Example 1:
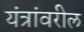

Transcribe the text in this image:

यंत्रांवरील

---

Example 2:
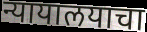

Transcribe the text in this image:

न्यायालयाचा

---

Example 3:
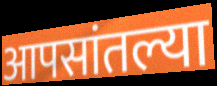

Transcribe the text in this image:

आपसांतल्या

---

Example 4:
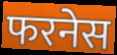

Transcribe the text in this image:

फरनेस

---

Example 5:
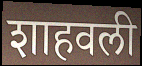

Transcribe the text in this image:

शाहवली